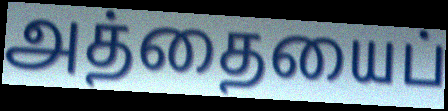
அத்தையைப்